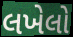
લખેલો